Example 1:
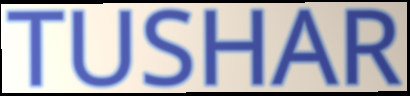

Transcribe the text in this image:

TUSHAR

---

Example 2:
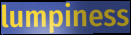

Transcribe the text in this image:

lumpiness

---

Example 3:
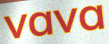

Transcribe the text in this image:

vava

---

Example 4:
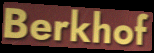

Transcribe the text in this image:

Berkhof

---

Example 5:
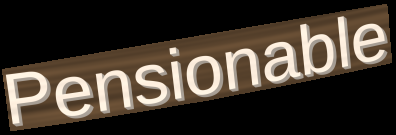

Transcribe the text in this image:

Pensionable